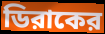
ডিরাকের